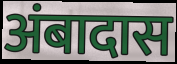
अंबादास